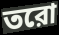
তরো